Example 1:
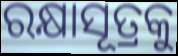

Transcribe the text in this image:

ରକ୍ଷାସୂତ୍ରକୁ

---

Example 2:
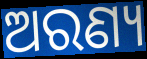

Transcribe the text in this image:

ଅରଣ୍ୟ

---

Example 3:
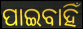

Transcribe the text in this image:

ପାଇବାହିଁ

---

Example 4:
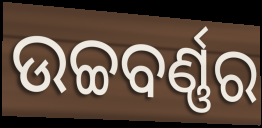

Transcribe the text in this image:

ଉଚ୍ଚବର୍ଣ୍ଣର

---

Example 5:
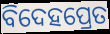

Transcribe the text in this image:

ବିଦେହପ୍ରେତ